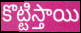
కొట్టిస్తాయి